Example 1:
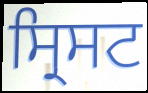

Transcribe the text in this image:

ਸ੍ਰਿਸਟ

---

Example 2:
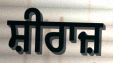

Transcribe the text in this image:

ਸ਼ੀਰਾਜ਼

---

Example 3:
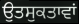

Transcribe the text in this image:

ਉਤਸੁਕਤਾਵਾਂ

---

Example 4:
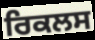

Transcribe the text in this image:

ਰਿਕਲਸ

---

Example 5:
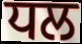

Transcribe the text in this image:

ਧਲ